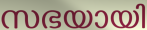
സഭയായി